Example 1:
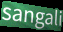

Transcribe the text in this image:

sangali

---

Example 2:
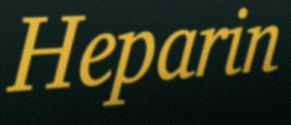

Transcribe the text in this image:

Heparin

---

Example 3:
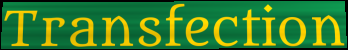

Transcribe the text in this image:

Transfection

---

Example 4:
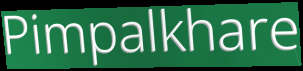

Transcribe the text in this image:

Pimpalkhare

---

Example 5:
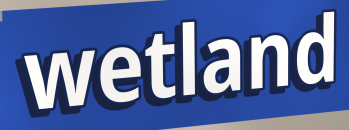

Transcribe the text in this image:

wetland